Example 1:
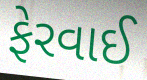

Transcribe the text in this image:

ફેરવાઈ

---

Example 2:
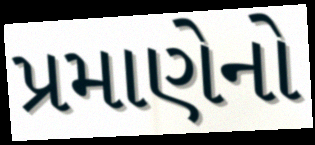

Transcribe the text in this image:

પ્રમાણેનો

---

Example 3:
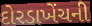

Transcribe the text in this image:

દોરડાખેંચની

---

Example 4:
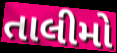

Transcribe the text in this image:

તાલીમો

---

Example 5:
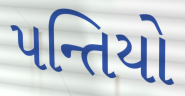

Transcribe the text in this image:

પન્તિયો